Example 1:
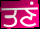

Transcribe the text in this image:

ਤਣਂ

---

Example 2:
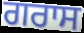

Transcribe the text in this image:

ਗਰਾਸ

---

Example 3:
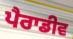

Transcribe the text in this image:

ਪੈਰਾਡੀਵ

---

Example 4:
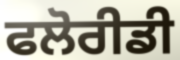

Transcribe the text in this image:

ਫਲੋਰੀਡੀ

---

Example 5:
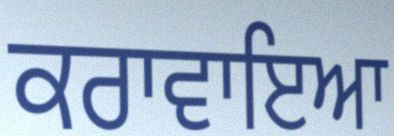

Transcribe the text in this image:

ਕਰਾਵਾਇਆ